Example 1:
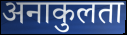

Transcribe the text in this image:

अनाकुलता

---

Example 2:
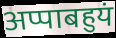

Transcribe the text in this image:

अप्पाबहुयं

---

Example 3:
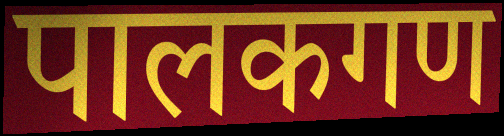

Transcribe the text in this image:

पालकगण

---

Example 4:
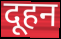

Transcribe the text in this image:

दूहन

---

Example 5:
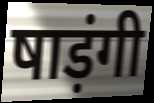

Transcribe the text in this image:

षाड़ंगी